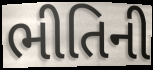
ભીતિની